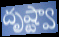
దృష్ట్వా